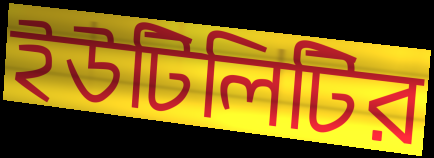
ইউটিলিটির